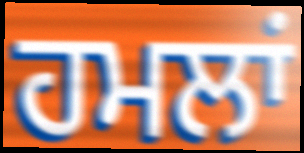
ਹਮਲਾਂ